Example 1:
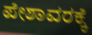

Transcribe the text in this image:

ಪೇಶಾವರಕ್ಕೆ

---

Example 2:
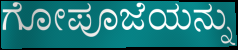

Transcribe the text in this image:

ಗೋಪೂಜೆಯನ್ನು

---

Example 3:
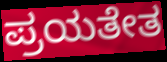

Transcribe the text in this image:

ಪ್ರಯತೇತ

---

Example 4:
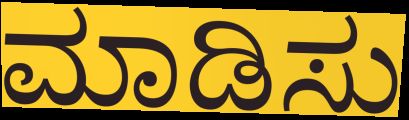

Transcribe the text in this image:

ಮಾಡಿಸು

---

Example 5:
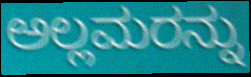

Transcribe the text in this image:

ಅಲ್ಲಮರನ್ನು